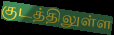
குடத்திலுள்ள